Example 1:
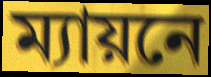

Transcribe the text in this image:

ম্যায়নে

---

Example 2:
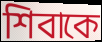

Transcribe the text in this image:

শিবাকে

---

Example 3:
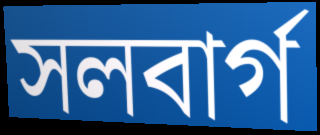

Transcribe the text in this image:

সলবার্গ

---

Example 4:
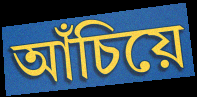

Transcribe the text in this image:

আঁচিয়ে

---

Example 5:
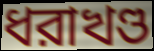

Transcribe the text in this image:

ধরাখণ্ড